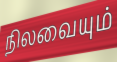
நிலவையும்